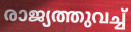
രാജ്യത്തുവച്ച്